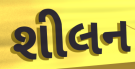
શીલન